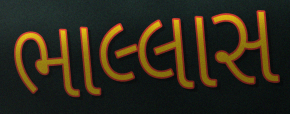
ભાલ્લાસ